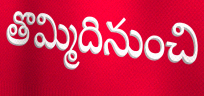
తొమ్మిదినుంచి